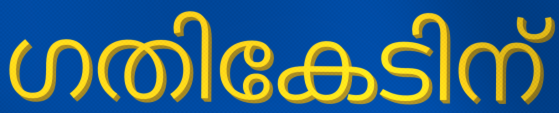
ഗതികേടിന്